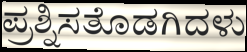
ಪ್ರಶ್ನಿಸತೊಡಗಿದಳು